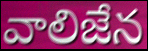
వాలిజేన